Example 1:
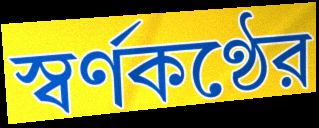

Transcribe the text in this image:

স্বর্ণকণ্ঠের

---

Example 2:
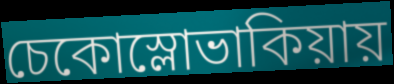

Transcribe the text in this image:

চেকোস্লোভাকিয়ায়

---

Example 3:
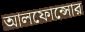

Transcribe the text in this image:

আলফোন্সোর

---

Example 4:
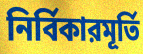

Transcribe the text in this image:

নির্বিকারমূর্তি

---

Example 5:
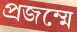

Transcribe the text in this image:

প্রজম্মে